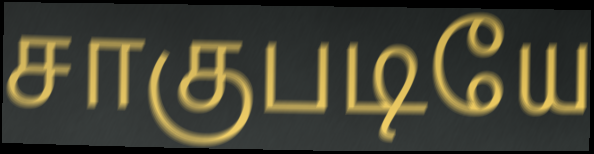
சாகுபடியே